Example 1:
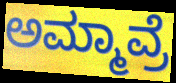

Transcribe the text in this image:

ಅಮ್ಮಾವ್ರೆ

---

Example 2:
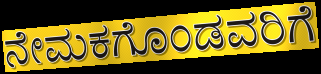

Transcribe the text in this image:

ನೇಮಕಗೊಂಡವರಿಗೆ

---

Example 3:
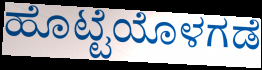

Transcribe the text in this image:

ಹೊಟ್ಟೆಯೊಳಗಡೆ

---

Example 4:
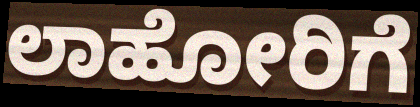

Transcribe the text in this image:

ಲಾಹೋರಿಗೆ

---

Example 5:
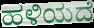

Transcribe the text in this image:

ಹಳಿಯದೆ